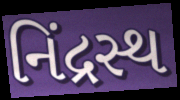
નિંદ્રસ્થ